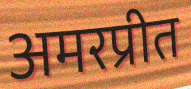
अमरप्रीत